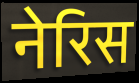
नेरिस